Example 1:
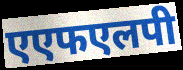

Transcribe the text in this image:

एएफएलपी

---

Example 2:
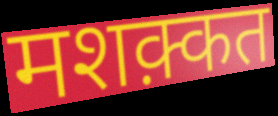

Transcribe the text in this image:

मशक़्कत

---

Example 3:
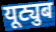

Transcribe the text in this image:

यूट्युब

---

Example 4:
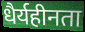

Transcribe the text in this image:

धैर्यहीनता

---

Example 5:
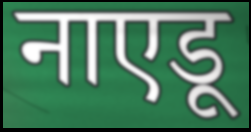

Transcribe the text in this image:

नाएडू